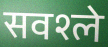
सवश्ले